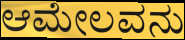
ಆಮೇಲವನು